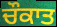
ਚੌਕਾਤ